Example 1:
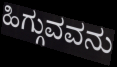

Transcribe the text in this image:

ಹಿಗ್ಗುವವನು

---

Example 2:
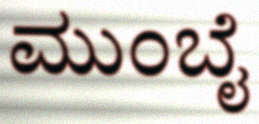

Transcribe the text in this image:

ಮುಂಬೈ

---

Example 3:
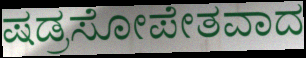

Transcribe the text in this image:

ಷಡ್ರಸೋಪೇತವಾದ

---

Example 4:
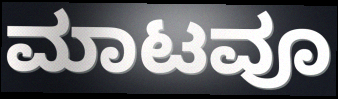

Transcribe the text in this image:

ಮಾಟವೂ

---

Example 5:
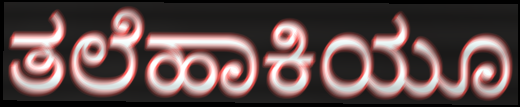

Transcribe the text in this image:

ತಲೆಹಾಕಿಯೂ